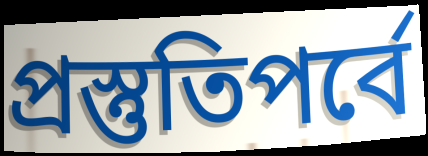
প্রস্তুতিপর্বে